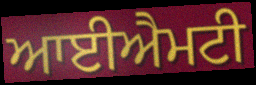
ਆਈਐਮਟੀ